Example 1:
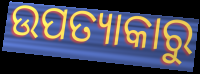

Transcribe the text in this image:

ଉପତ୍ୟାକାରୁ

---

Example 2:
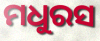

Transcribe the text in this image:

ମଧୁରସ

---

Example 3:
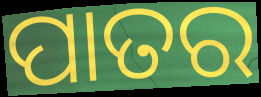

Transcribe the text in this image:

ପାତର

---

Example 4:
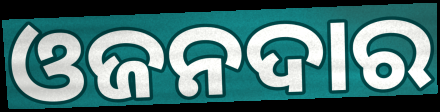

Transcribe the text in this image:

ଓଜନଦାର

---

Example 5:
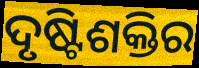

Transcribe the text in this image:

ଦୃଷ୍ଟିଶକ୍ତିର